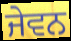
ਜੇਵਨ